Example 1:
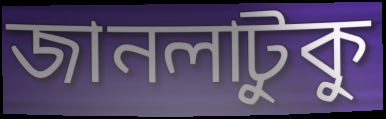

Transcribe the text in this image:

জানলাটুকু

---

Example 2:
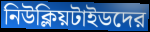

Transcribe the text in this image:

নিউক্লিয়টাইডদের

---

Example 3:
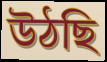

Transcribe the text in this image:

উঠছি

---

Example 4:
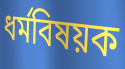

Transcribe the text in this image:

ধর্মবিষয়ক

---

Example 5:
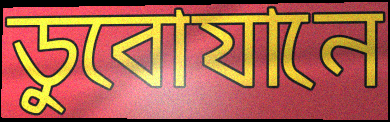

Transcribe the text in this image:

ডুবোযানে